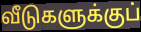
வீடுகளுக்குப்